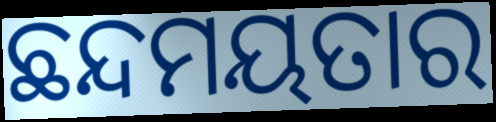
ଛନ୍ଦମୟତାର